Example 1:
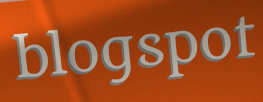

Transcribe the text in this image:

blogspot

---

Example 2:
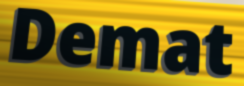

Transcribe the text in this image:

Demat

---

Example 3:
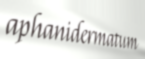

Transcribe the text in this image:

aphanidermatum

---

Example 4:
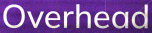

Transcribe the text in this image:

Overhead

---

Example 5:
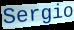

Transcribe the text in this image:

Sergio